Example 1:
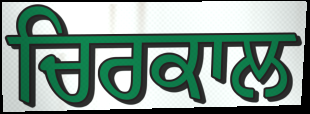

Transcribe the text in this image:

ਚਿਰਕਾਲ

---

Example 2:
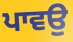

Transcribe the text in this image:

ਪਾਵਉ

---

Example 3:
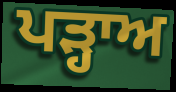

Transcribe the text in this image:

ਪੜ੍ਹਾਅ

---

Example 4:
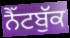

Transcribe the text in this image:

ਨੈੱਟਬੁੱਕ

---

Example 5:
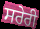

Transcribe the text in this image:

ਸਰੇਰੀ